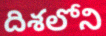
దిశలోని